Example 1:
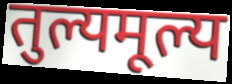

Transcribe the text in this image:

तुल्यमूल्य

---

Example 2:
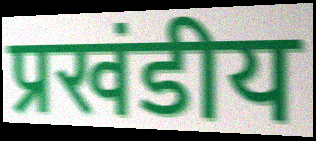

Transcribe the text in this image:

प्रखंडीय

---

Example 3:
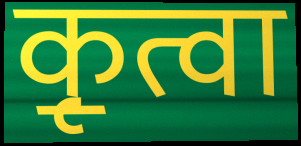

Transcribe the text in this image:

कृ॒त्वा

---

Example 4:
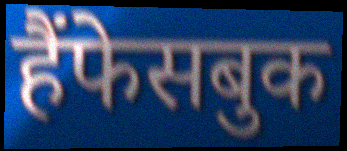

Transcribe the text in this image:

हैंफेसबुक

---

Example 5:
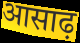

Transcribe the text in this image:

आसाढ़